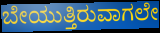
ಬೇಯುತ್ತಿರುವಾಗಲೇ